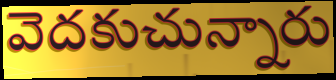
వెదకుచున్నారు